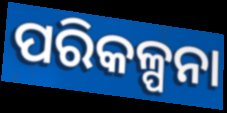
ପରିକଳ୍ପନା